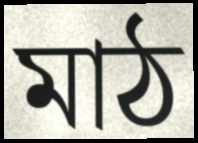
মাঠ